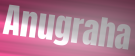
Anugraha